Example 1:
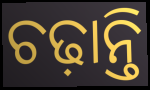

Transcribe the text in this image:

ଚଢ଼ାନ୍ତି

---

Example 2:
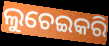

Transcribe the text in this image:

ଲୁଚେଇକରି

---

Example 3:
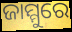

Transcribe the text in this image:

ଜାମ୍ମୁରେ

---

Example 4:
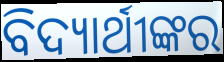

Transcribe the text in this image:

ବିଦ୍ୟାର୍ଥୀଙ୍କର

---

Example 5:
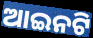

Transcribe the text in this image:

ଆଇନଟି